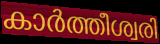
കാർത്തീശ്വരി